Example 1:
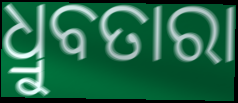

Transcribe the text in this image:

ଧ୍ରୁବତାରା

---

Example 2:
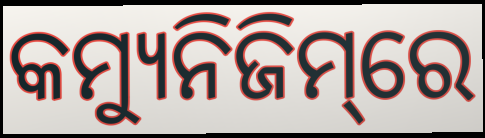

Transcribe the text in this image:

କମ୍ୟୁନିଜିମ୍‌ରେ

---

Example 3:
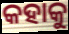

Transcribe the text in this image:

କହାକୁ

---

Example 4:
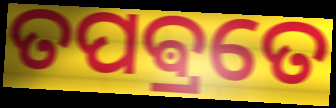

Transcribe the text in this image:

ତପଵ୍ରତେ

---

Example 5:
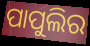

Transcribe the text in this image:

ପାପୁଲିର